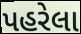
પહરેલા